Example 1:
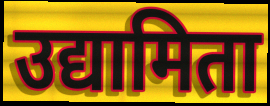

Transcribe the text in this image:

उद्यामिता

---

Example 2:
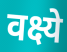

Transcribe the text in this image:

वक्ष्ये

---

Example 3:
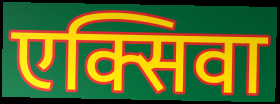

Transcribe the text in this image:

एक्सिवा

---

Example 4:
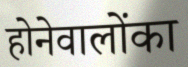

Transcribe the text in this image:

होनेवालोंका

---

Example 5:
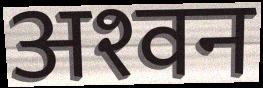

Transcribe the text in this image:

अश्वन